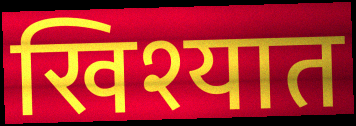
खिश्यात